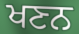
ਖਣਨ